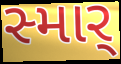
સ્માર્